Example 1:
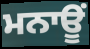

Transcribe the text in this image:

ਮਨਾਊਂ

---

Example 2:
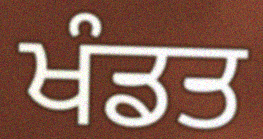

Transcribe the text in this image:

ਖੰਡਤ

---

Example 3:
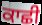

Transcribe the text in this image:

ਕਾਛੀ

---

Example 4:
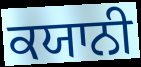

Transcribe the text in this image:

ਕਯਾਨੀ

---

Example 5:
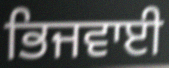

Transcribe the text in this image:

ਭਿਜਵਾਈ